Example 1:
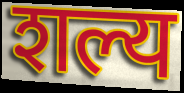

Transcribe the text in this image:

शल्य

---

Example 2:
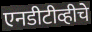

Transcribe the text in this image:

एनडीटीव्हीचे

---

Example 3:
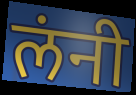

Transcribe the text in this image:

लंनी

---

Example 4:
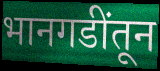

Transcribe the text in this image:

भानगडींतून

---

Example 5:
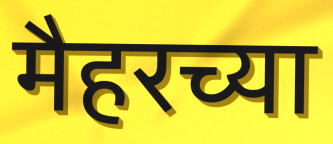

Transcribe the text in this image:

मैहरच्या